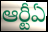
ఆర్టీఏ